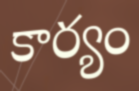
కార్యం